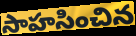
సాహసించిన